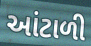
આંટાળી